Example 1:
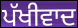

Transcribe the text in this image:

ਪੱਖੀਵਾਦ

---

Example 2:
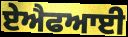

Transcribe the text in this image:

ਏਐਫਆਈ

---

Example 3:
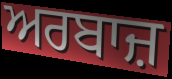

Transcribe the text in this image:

ਅਰਬਾਜ਼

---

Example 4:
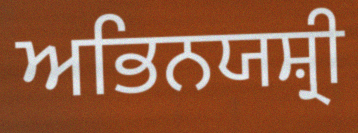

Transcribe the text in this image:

ਅਭਿਨਯਸ਼੍ਰੀ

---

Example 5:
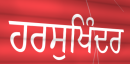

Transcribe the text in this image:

ਹਰਸੁਖਿੰਦਰ